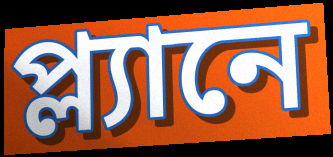
প্ল্যানে